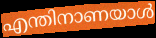
എന്തിനാണയാൾ